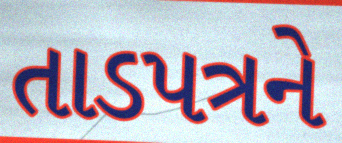
તાડપત્રને